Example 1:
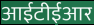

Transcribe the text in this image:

आईटीईआर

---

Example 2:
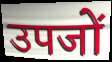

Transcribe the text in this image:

उपजों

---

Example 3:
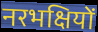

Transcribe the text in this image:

नरभक्षियों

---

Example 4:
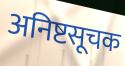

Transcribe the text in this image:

अनिष्टसूचक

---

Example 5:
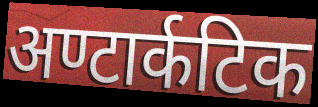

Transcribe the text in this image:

अण्टार्कटिक